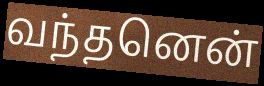
வந்தனென்